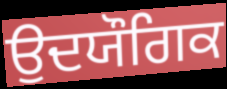
ਉਦਯੌਗਿਕ